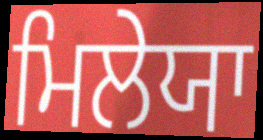
ਮਿਲੇਯਾ